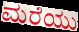
ಮರೆಯು